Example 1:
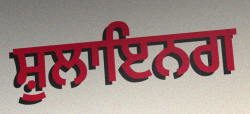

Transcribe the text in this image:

ਸ਼ੁਲਾਇਨਗ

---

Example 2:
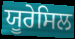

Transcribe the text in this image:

ਯੂਰੇਸਿਲ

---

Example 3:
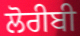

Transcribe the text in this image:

ਲੋਰੀਬੀ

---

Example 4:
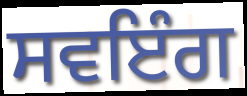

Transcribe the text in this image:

ਸਵਇੰਗ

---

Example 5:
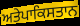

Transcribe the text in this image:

ਅਤੇਪਾਕਿਸਤਾਨ